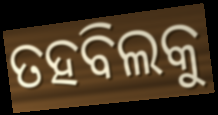
ତହବିଲକୁ